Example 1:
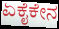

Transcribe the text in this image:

ಏಕೈಕೇನ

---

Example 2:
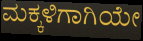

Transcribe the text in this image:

ಮಕ್ಕಳಿಗಾಗಿಯೇ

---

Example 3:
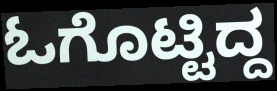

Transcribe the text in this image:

ಓಗೊಟ್ಟಿದ್ದ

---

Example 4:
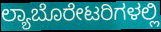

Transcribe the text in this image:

ಲ್ಯಾಬೊರೇಟರಿಗಳಲ್ಲಿ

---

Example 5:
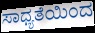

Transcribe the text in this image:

ಸಾಧ್ಯತೆಯಿಂದ